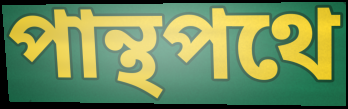
পান্থপথে